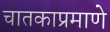
चातकाप्रमाणे